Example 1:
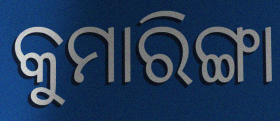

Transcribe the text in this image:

କୁମାରିଙ୍ଗା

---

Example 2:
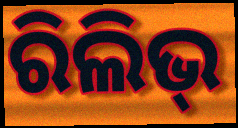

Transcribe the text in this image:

ରିଲିଭ୍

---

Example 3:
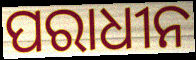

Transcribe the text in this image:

ପରାଧୀନ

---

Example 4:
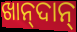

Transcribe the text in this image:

ଖାନ୍‍ଦାନ୍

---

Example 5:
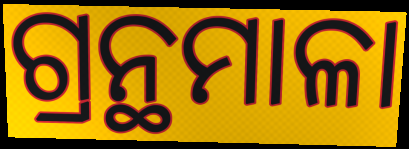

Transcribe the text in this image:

ଗ୍ରନ୍ଥମାଳା